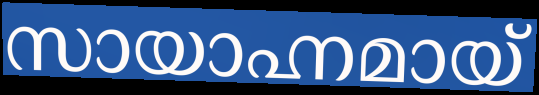
സായാഹ്നമായ്